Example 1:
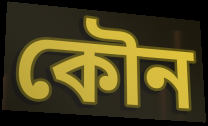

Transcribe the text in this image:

কৌন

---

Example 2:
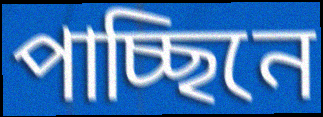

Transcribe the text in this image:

পাচ্ছিনে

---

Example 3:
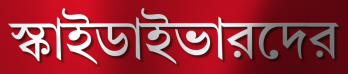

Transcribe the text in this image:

স্কাইডাইভারদের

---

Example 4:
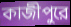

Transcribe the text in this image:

কাজীপুরে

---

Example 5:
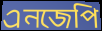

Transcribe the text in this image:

এনজেপি